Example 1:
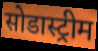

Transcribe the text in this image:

सोडास्ट्रीम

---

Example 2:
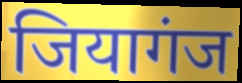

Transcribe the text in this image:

जियागंज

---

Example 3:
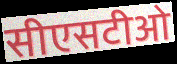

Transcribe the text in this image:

सीएसटीओ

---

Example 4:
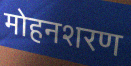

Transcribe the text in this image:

मोहनशरण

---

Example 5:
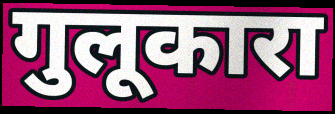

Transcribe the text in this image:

गुलूकारा